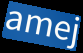
amej